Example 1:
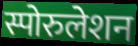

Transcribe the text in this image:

स्पोरुलेशन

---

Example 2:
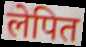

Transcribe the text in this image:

लेपित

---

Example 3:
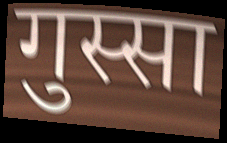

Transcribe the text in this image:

गुस्सा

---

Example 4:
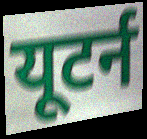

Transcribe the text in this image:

यूटर्न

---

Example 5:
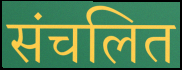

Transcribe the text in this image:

संचलित